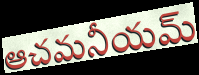
ఆచమనీయమ్